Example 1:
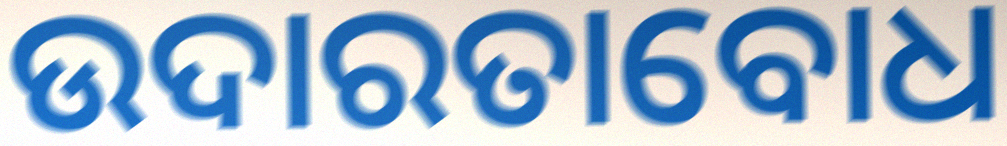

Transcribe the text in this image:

ଉଦାରତାବୋଧ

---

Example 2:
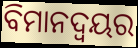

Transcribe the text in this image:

ବିମାନଦ୍ବୟର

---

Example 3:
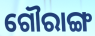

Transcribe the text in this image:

ଗୌରାଙ୍ଗ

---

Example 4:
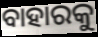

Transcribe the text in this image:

ବାହାରକୁ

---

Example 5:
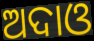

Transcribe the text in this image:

ଅଦାଓ